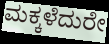
ಮಕ್ಕಳೆದುರೇ